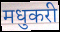
मधुकरी